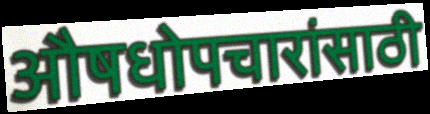
औषधोपचारांसाठी